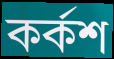
কর্কশ